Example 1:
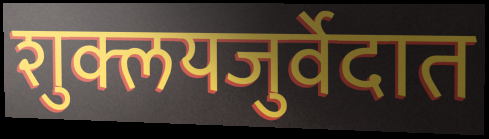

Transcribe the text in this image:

शुक्लयजुर्वेदात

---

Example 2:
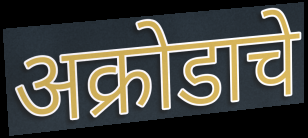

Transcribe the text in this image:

अक्रोडाचे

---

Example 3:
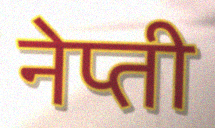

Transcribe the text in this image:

नेप्ती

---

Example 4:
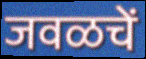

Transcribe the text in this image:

जवळचें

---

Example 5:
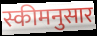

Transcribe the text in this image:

स्कीमनुसार